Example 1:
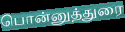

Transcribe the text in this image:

பொன்னுத்துரை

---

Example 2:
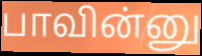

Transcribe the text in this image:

பாவின்னு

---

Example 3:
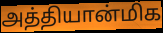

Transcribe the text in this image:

அத்தியான்மிக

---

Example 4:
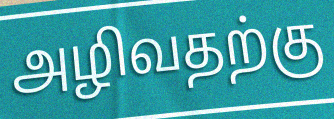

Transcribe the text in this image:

அழிவதற்கு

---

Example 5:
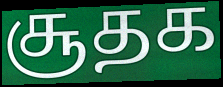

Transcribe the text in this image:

சூதக